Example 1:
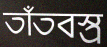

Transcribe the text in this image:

তাঁতবস্ত্র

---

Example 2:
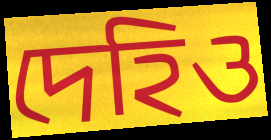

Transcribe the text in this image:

দেহিও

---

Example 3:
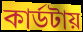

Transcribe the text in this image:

কার্ডটায়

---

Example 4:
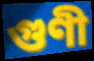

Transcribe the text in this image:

গুণী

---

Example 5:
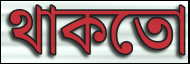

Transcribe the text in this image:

থাকতো